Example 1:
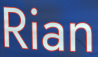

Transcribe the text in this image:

Rian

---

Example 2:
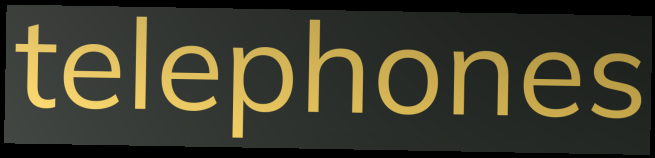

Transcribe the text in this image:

telephones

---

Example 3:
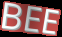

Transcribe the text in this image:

BEE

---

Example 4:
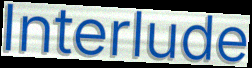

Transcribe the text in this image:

Interlude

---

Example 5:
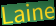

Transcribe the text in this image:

Laine